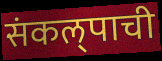
संकल्पाची